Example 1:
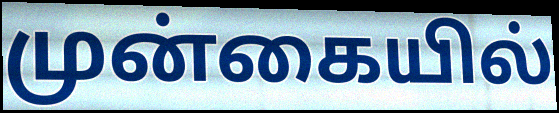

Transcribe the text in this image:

முன்கையில்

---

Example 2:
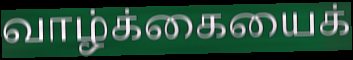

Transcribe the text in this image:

வாழ்க்கையைக்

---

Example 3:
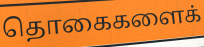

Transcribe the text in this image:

தொகைகளைக்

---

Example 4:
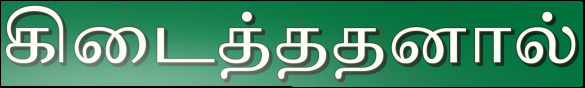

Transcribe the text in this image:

கிடைத்ததனால்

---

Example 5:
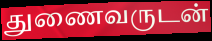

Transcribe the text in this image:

துணைவருடன்